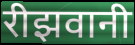
रीझवानी